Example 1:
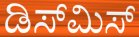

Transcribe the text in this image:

ಡಿಸ್‌ಮಿಸ್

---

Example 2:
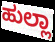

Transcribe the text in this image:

ಹುಲ್ಲಾ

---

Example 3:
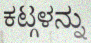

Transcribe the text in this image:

ಕಟ್ಗಳನ್ನು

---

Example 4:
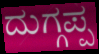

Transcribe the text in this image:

ದುಗ್ಗಪ್ಪ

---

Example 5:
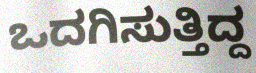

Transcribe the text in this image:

ಒದಗಿಸುತ್ತಿದ್ದ